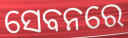
ସେବନରେ